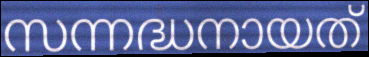
സന്നദ്ധനായത്